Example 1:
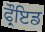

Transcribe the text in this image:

ਫ੍ਰੌਇਡ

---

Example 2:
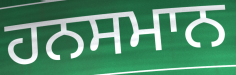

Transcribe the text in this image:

ਹਨਸਮਾਨ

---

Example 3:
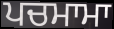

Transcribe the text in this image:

ਪਚਮਾਮਾ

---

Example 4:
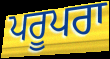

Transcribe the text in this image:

ਪਰੂਪਰਾ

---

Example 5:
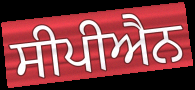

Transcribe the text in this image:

ਸੀਪੀਐਨ